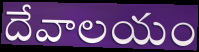
దేవాలయం